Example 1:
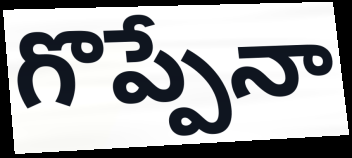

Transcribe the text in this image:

గొప్పేనా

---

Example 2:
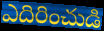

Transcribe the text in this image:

ఎదిరించుడి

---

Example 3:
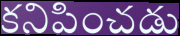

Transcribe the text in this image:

కనిపించడు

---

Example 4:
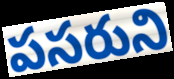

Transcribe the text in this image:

పసరుని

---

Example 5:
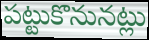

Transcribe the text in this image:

పట్టుకొనునట్లు